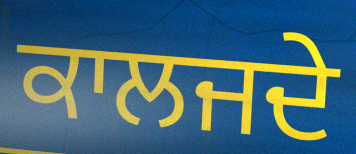
ਕਾਲਜਦੇ